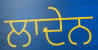
ਲਾਦੇਨ